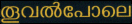
തൂവൽപോലെ